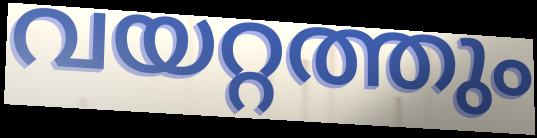
വയറ്റത്തും